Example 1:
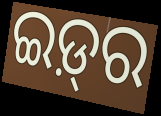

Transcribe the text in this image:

ଇଡ଼୍‍ର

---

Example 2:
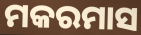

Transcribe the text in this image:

ମକରମାସ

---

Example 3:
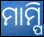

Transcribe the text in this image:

ମାମ୍ପି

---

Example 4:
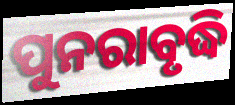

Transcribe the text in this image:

ପୁନରାବୃଦ୍ଧି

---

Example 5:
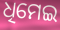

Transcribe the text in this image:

ଧିମେଇ